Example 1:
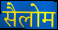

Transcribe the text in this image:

सैलोम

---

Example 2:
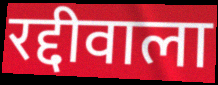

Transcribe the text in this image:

रद्दीवाला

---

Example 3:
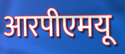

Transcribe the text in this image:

आरपीएमयू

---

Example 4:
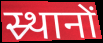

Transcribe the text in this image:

स्र्थानों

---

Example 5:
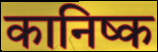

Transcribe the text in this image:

कानिष्क